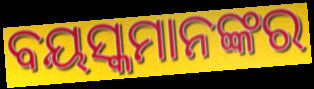
ବୟସ୍କମାନଙ୍କର